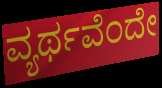
ವ್ಯರ್ಥವೆಂದೇ